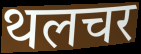
थलचर